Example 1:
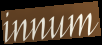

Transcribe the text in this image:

innum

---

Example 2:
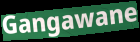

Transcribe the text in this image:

Gangawane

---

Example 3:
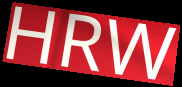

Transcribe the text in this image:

HRW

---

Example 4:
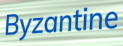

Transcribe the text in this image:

Byzantine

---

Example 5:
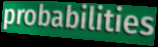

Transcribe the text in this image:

probabilities